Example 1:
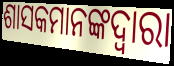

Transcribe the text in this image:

ଶାସକମାନଙ୍କଦ୍ୱାରା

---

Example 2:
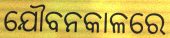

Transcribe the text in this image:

ଯୌବନକାଳରେ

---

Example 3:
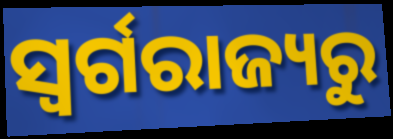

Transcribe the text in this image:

ସ୍ବର୍ଗରାଜ୍ୟରୁ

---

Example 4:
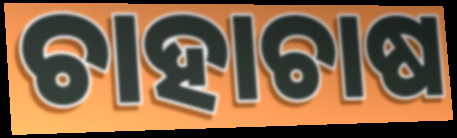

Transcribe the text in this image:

ଚାହାଚାଷ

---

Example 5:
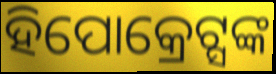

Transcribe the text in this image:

ହିପୋକ୍ରେଟ୍ସଙ୍କ